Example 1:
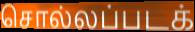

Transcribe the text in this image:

சொல்லப்படக்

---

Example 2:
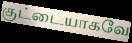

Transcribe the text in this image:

குட்டையாகவே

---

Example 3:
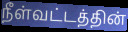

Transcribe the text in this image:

நீள்வட்டத்தின்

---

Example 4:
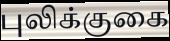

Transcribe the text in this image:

புலிக்குகை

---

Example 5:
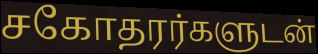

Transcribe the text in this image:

சகோதரர்களுடன்